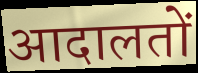
आदालतों